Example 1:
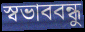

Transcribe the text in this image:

স্বভাববন্ধু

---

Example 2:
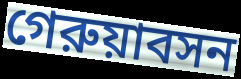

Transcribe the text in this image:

গেরুয়াবসন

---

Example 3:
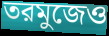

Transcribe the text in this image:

তরমুজেও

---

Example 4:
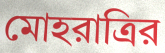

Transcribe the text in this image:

মোহরাত্রির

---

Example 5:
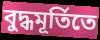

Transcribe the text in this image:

বুদ্ধমূর্তিতে